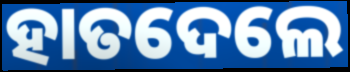
ହାତଦେଲେ